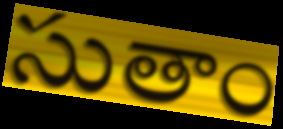
సుతాం